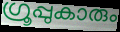
ഗ്രൂപ്പുകാരും